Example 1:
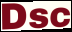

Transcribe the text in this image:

Dsc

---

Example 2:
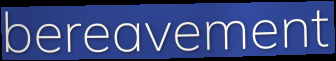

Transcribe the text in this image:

bereavement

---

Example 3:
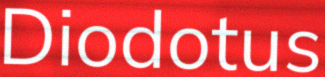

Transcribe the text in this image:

Diodotus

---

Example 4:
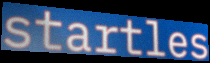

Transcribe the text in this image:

startles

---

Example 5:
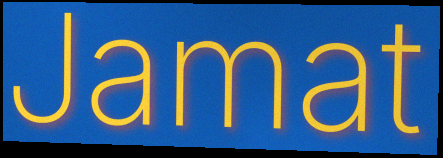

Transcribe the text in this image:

Jamat